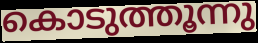
കൊടുത്തൂന്നു